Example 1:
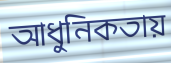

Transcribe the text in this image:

আধুনিকতায়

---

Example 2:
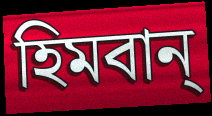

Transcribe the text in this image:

হিমবান্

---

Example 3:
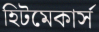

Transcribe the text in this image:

হিটমেকার্স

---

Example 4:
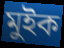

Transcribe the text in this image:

মুইক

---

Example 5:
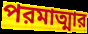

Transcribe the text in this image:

পরমাত্মার